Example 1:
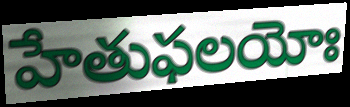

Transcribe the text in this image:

హేతుఫలయోః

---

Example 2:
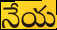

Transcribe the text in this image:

నేయ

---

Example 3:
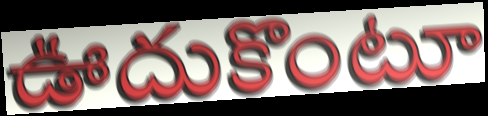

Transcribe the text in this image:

ఊదుకొంటూ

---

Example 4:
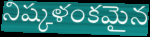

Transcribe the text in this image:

నిష్కళంకమైన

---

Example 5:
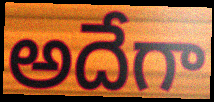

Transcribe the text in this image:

అదేగా